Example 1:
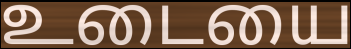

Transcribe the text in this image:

உடையை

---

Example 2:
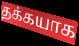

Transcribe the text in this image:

தக்கயாக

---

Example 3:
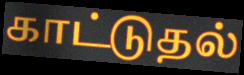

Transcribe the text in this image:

காட்டுதல்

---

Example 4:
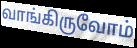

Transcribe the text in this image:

வாங்கிருவோம்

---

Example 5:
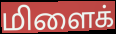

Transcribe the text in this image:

மிளைக்